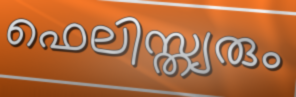
ഫെലിസ്ത്യരും